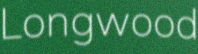
Longwood